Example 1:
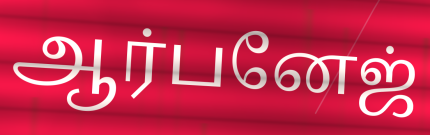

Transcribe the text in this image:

ஆர்பனேஜ்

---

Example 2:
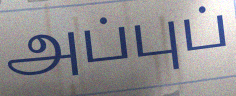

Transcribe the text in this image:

அப்புப்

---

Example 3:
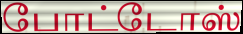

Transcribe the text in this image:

போட்டோஸ்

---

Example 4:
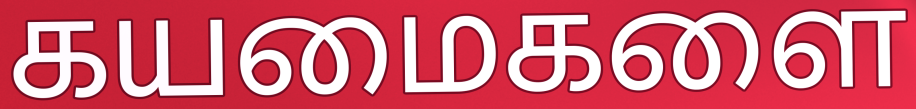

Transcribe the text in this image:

கயமைகளை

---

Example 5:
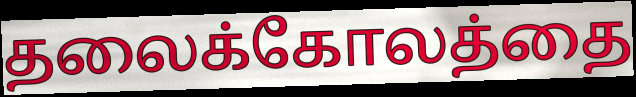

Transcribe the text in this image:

தலைக்கோலத்தை